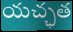
యచ్ఛత